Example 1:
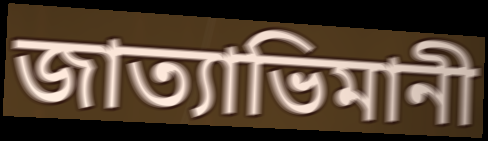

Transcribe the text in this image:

জাত্যাভিমানী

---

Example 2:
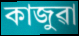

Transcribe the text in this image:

কাজুৱা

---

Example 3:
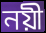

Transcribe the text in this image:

নয়ী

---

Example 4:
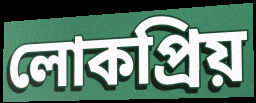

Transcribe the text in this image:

লোকপ্ৰিয়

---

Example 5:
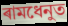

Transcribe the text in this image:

ৰামধেনুত